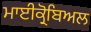
ਮਾਈਕ੍ਰੋਬਿਅਲ